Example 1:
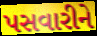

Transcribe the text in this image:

પસવારીને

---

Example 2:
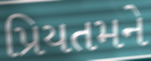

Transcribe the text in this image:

પ્રિયતમને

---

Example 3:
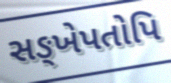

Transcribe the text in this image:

સઙ્ખેપતોપિ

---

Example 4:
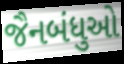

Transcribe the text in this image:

જૈનબંધુઓ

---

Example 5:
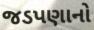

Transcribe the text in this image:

જડપણાનો